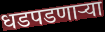
धडपडणाऱ्या